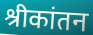
श्रीकांतन